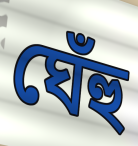
ঘেঁহু